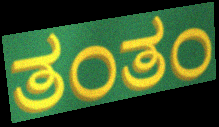
ತಂತಂ